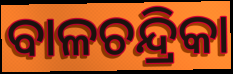
ବାଳଚନ୍ଦ୍ରିକା